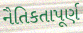
નૈતિકતાપૂર્ણ